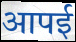
आपई